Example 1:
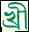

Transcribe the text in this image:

খ্ৰী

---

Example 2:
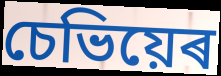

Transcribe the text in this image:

চেভিয়েৰ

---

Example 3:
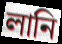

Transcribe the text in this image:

লানি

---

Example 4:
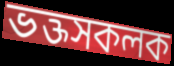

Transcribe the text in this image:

ভক্তসকলক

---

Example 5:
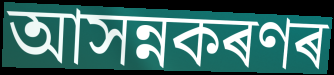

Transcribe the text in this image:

আসন্নকৰণৰ